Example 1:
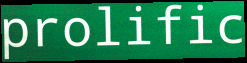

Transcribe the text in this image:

prolific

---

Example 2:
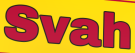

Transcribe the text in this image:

Svah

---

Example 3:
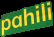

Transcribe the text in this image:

pahili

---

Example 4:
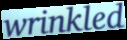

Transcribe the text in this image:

wrinkled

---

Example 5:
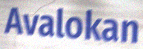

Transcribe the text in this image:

Avalokan